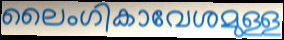
ലൈംഗികാവേശമുള്ള